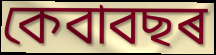
কেবাবছৰ